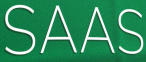
SAAS